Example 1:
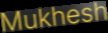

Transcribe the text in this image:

Mukhesh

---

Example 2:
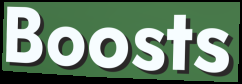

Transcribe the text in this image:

Boosts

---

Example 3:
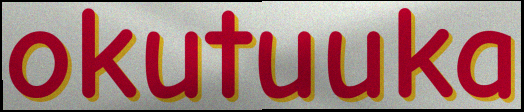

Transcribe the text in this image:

okutuuka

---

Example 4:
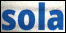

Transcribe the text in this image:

sola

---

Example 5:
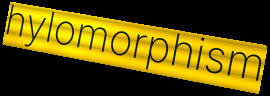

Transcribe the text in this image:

hylomorphism